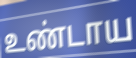
உண்டாய